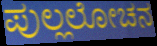
ಪುಲ್ಲಲೋಚನ